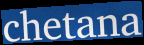
chetana